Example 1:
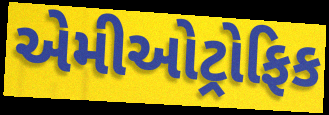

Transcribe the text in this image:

એમીઓટ્રોફિક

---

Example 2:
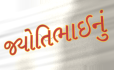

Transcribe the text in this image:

જ્યોતિભાઈનું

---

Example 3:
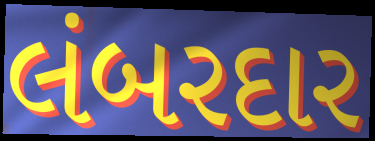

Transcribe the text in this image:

લંબરદાર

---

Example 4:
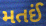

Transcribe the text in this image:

મતઈં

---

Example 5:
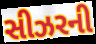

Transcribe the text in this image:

સીઝરની